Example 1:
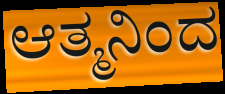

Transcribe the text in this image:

ಆತ್ಮನಿಂದ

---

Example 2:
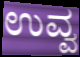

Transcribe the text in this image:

ಉವ್ವ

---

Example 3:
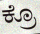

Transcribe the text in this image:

ಕ್ರೊ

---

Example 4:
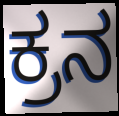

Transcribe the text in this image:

ಕ್ರನ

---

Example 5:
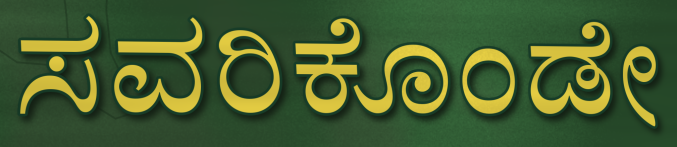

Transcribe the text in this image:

ಸವರಿಕೊಂಡೇ